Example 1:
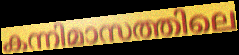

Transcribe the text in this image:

കന്നിമാസത്തിലെ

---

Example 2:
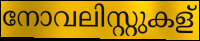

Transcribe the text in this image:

നോവലിസ്റ്റുകള്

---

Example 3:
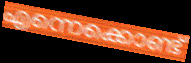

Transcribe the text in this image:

എന്നെക്കൊണ്ട്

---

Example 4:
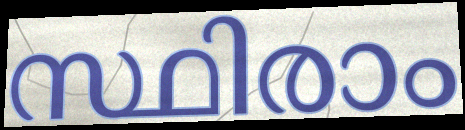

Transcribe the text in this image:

സ്ഥിരാം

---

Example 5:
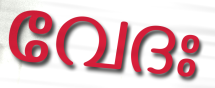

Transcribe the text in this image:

വേദഃ